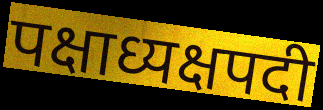
पक्षाध्यक्षपदी